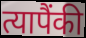
त्यापैंकी